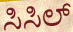
ಸಿಸಿಲ್